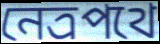
নেত্রপথে